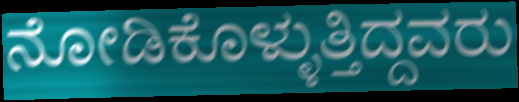
ನೋಡಿಕೊಳ್ಳುತ್ತಿದ್ದವರು